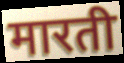
मारती